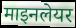
माइनलेयर